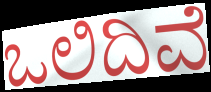
ಒಲಿದಿವೆ